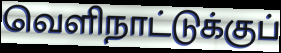
வெளிநாட்டுக்குப்